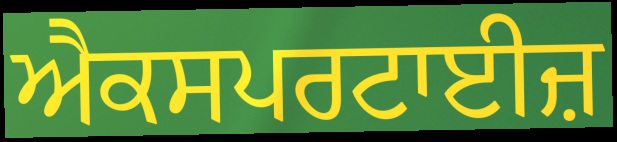
ਐਕਸਪਰਟਾਈਜ਼